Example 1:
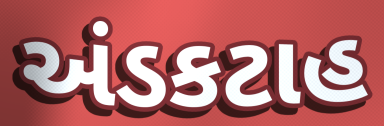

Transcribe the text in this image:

અંડકટાહ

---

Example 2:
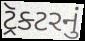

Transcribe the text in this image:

ટ્રૅક્ટરનું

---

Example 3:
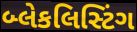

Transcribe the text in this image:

બ્લેકલિસ્ટિંગ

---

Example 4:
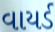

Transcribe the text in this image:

વાયર્ડ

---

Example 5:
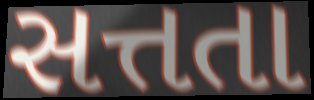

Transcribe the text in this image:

સત્તતા